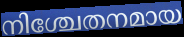
നിശ്ചേതനമായ